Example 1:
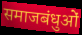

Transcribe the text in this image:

समाजबंधुओं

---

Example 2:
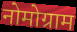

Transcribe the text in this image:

नोमोग्राम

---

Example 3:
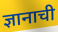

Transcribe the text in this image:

ज्ञानाची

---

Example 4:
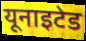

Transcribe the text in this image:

यूनाइटेड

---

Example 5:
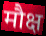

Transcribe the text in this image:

मौक्ष